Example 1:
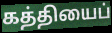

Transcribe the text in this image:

கத்தியைப்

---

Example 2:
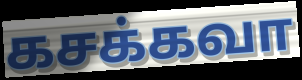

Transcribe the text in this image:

கசக்கவா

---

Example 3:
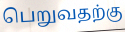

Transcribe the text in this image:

பெறுவதற்கு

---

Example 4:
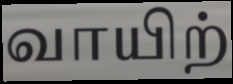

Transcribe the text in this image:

வாயிற்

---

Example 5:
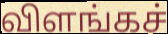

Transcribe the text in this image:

விளங்கச்